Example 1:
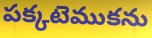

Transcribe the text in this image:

పక్కటెముకను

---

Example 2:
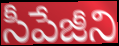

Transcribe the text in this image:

సీపేజీని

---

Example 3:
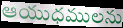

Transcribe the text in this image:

ఆయుధములను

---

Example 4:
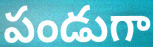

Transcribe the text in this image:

పండుగా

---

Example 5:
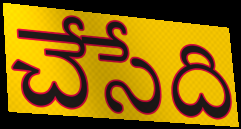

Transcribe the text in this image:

చేసేది